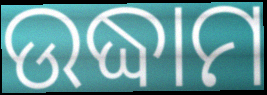
ଉଦ୍ଧାମ